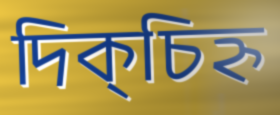
দিক্‌চিহ্ন